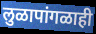
लुळापांगळाही